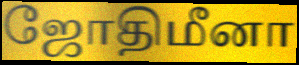
ஜோதிமீனா